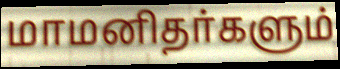
மாமனிதர்களும்